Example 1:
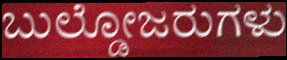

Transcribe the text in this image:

ಬುಲ್ಡೋಜರುಗಳು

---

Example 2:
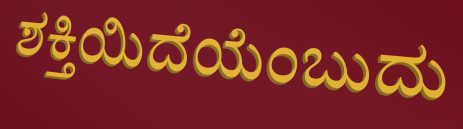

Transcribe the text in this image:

ಶಕ್ತಿಯಿದೆಯೆಂಬುದು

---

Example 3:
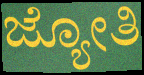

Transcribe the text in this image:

ಜ್ಯೋತಿ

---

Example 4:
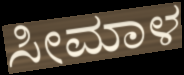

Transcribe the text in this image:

ಸೀಮಾಳ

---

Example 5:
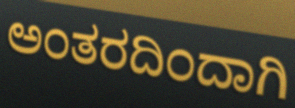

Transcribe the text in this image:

ಅಂತರದಿಂದಾಗಿ